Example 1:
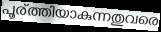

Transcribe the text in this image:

പൂര്ത്തിയാകുന്നതുവരെ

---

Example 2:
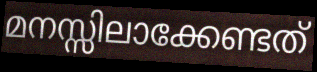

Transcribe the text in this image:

മനസ്സിലാക്കേണ്ടത്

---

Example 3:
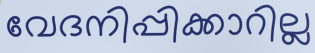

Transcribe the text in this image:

വേദനിപ്പിക്കാറില്ല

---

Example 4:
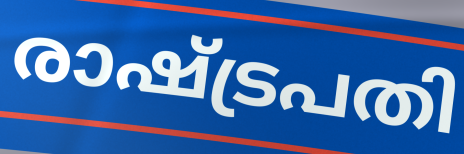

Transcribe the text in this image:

രാഷ്ട്രപതി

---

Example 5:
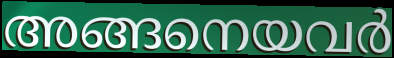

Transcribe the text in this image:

അങ്ങനെയവർ